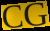
CG